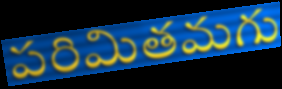
పరిమితమగు